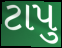
ટાપુ